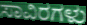
ಸಾವಿರಗಳು